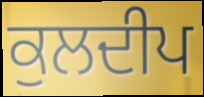
ਕੁਲਦੀਪ